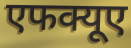
एफक्यूए